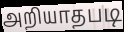
அறியாதபடி